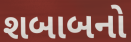
શબાબનો